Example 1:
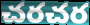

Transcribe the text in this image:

చరచర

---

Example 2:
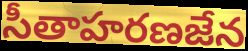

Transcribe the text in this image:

సీతాహరణజేన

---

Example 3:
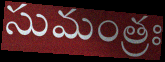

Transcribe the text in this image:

సుమంత్రః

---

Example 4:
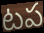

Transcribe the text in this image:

టప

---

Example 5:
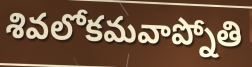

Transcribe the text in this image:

శివలోకమవాప్నోతి